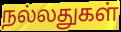
நல்லதுகள்